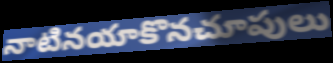
నాటినయాకొనచూపులు